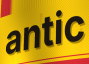
antic